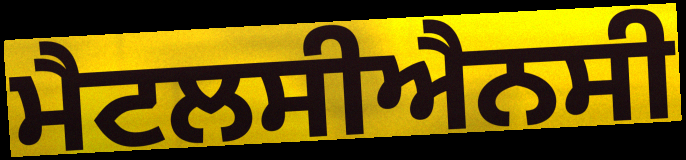
ਮੈਟਲਸੀਐਨਸੀ